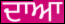
ਦਾਆ